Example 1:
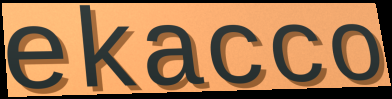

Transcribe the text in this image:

ekacco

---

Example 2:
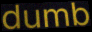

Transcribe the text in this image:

dumb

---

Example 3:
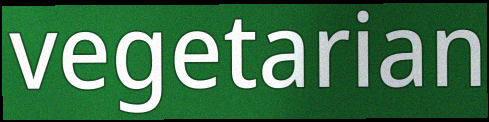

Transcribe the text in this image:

vegetarian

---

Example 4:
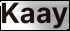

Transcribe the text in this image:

Kaay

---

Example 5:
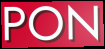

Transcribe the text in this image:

PON